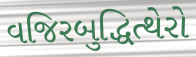
વજિરબુદ્ધિત્થેરો